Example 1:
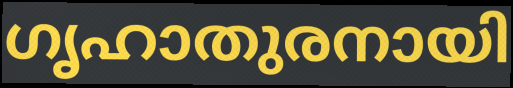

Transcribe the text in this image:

ഗൃഹാതുരനായി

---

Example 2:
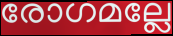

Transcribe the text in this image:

രോഗമല്ലേ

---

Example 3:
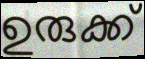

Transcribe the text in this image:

ഉരുക്ക്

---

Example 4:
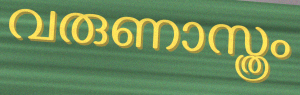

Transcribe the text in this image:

വരുണാസ്ത്രം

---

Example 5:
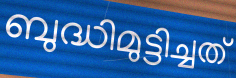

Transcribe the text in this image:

ബുദ്ധിമുട്ടിച്ചത്